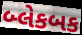
બ્લેકબક